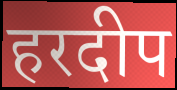
हरदीप